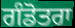
ਗੰਡੋਤਰਾ